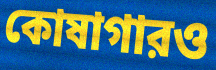
কোষাগারও